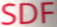
SDF